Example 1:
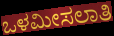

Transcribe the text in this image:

ಒಳಮೀಸಲಾತಿ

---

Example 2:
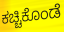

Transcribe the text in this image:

ಕಚ್ಚಿಕೊಂಡೆ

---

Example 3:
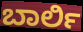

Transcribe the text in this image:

ಬಾರ್ಲಿ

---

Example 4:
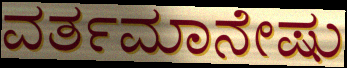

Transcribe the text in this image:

ವರ್ತಮಾನೇಷು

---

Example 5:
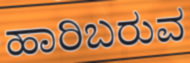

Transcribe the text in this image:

ಹಾರಿಬರುವ